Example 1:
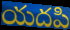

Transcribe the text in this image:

యదపి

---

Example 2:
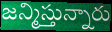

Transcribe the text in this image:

జన్మిస్తున్నారు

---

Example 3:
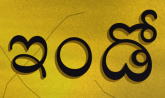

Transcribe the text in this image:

ఇండో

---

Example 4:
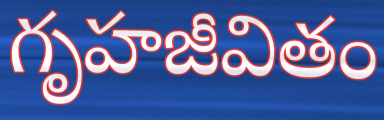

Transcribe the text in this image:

గృహజీవితం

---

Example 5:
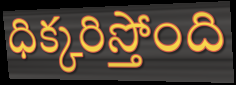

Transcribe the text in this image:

ధిక్కరిస్తోంది